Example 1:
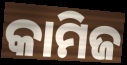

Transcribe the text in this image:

କାମିଜ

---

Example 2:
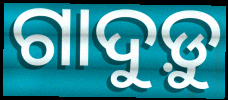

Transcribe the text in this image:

ଗାଦୁଡ଼ୁ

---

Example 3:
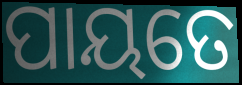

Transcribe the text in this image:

ପାୟତେ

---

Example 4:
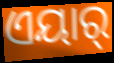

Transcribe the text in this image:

ଏୟାର୍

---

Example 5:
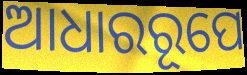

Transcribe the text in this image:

ଆଧାରରୂପେ